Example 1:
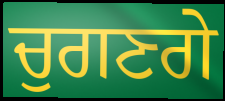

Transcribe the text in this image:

ਚੁਗਣਗੇ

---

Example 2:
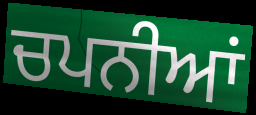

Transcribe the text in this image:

ਚਪਨੀਆਂ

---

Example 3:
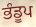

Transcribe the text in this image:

ਭੰਡੂਪ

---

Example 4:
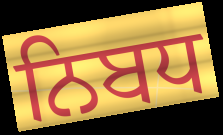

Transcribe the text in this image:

ਨਿਬਧ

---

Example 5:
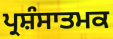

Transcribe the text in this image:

ਪ੍ਰਸ਼ੰਸਾਤਮਕ